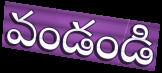
వండండి